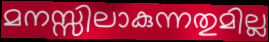
മനസ്സിലാകുന്നതുമില്ല